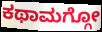
ಕಥಾಮಗ್ಗೋ